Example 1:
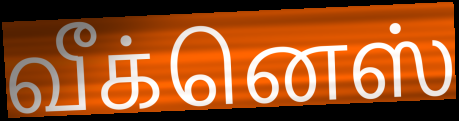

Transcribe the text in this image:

வீக்னெஸ்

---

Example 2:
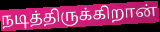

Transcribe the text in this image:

நடித்திருக்கிறான்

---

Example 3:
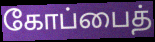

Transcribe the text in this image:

கோப்பைத்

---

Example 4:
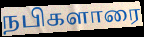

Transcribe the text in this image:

நபிகளாரை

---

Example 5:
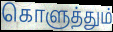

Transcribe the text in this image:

கொளுத்தும்